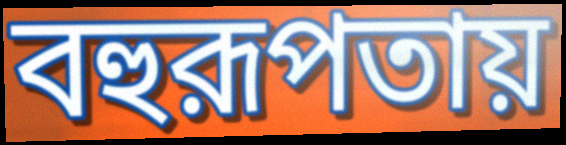
বহুরূপতায়